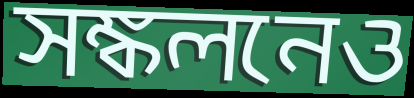
সঙ্কলনেও